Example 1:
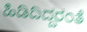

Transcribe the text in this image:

ಹಿಡಿದಿದ್ದರಂತೆ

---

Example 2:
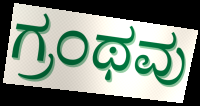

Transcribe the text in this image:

ಗ್ರಂಥವು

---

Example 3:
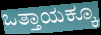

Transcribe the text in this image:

ಒತ್ತಾಯಕ್ಕೂ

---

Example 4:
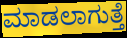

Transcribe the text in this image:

ಮಾಡಲಾಗುತ್ತೆ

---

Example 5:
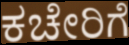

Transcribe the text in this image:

ಕಚೇರಿಗೆ